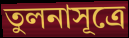
তুলনাসূত্রে